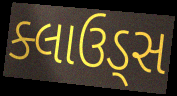
ક્લાઉડ્સ